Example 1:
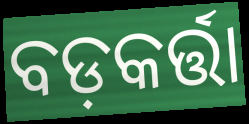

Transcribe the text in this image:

ବଡ଼କର୍ତ୍ତା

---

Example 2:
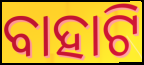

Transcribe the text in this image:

ବାହାଟି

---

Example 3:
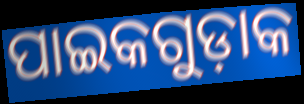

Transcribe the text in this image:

ପାଇକଗୁଡ଼ାକ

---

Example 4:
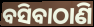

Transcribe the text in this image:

ବସିବାଠାଣି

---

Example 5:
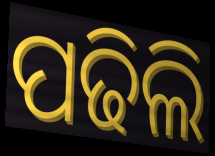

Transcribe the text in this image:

ପଢିଲି